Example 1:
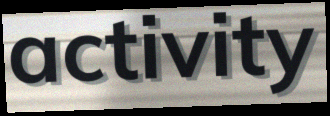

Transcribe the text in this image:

activity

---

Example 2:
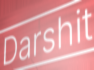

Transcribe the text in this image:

Darshit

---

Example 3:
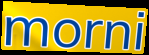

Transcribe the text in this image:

morni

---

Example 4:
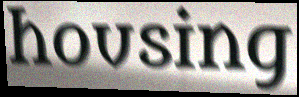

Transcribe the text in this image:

housing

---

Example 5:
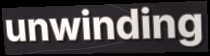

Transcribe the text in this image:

unwinding